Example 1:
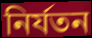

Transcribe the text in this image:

নির্যতন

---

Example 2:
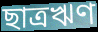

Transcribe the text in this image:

ছাত্রঋণ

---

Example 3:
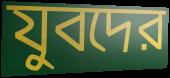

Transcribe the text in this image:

যুবদের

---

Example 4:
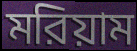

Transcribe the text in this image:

মরিয়াম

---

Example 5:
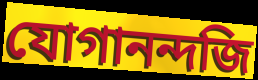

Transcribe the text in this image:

যোগানন্দজি